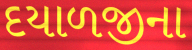
દયાળજીના